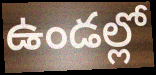
ఉండల్లో